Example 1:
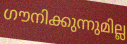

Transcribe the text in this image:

ഗൗനിക്കുന്നുമില്ല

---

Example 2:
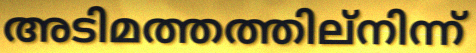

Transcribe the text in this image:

അടിമത്തത്തില്നിന്ന്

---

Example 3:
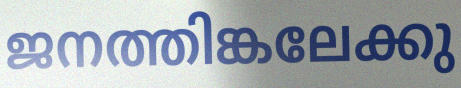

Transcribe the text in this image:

ജനത്തിങ്കലേക്കു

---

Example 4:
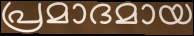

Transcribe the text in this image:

പ്രമാദമായ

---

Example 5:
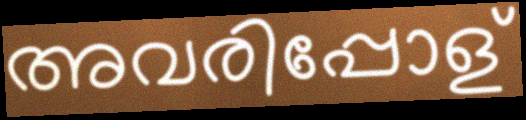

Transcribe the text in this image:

അവരിപ്പോള്